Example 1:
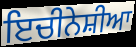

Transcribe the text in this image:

ਇਚੀਨੇਸ਼ੀਆ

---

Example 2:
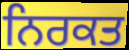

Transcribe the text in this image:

ਨਿਰਕਤ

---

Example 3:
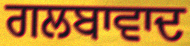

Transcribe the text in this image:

ਗਲਬਾਵਾਦ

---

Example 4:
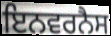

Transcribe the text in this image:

ਇਨਵਰਨੈਸ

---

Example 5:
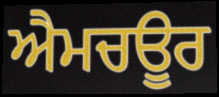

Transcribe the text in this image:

ਐਮਚਊਰ